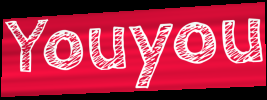
Youyou